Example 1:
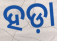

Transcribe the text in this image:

ହଡ଼ା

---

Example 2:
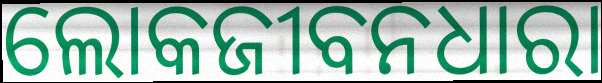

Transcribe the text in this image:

ଲୋକଜୀବନଧାରା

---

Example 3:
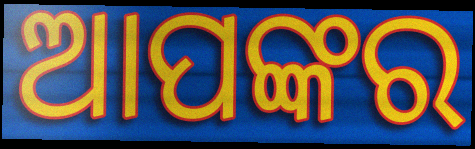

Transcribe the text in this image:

ଆପଙ୍କର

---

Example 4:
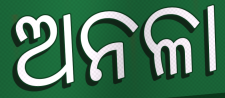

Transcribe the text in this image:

ଅନଳା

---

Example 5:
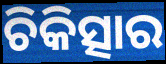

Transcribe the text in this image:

ଚିକିତ୍ସାର